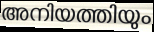
അനിയത്തിയും